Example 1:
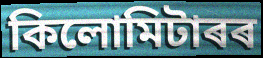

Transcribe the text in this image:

কিলোমিটাৰৰ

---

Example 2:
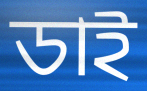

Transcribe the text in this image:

ডাই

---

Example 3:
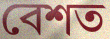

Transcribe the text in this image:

বেশত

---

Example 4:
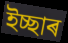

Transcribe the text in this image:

ইচ্ছাৰ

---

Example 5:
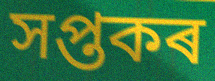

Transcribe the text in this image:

সপ্তকৰ